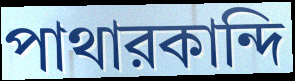
পাথারকান্দি